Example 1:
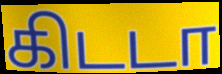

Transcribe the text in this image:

கிடடா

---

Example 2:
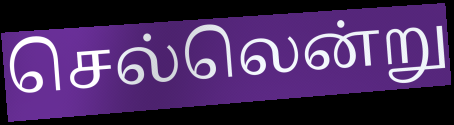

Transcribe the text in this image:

செல்லென்று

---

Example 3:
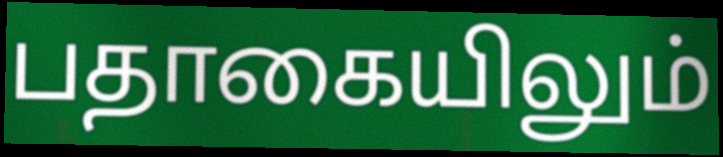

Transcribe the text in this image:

பதாகையிலும்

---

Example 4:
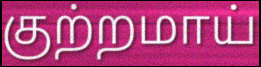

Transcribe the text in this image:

குற்றமாய்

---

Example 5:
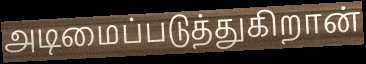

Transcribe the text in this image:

அடிமைப்படுத்துகிறான்